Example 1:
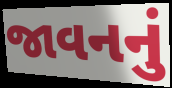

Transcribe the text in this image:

જાવનનું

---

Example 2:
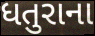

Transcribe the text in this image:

ધતુરાના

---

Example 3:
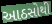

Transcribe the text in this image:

આઠસોથી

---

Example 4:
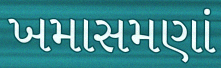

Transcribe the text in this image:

ખમાસમણાં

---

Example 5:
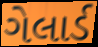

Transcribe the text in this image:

ગેલાર્ડ